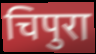
चिपुरा